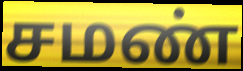
சமண்